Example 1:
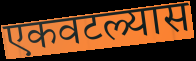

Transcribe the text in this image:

एकवटल्यास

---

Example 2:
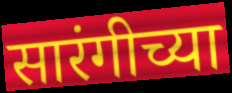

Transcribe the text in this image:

सारंगीच्या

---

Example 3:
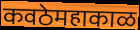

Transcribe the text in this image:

कवठेमहाकाळ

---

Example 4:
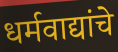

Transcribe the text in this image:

धर्मवाद्यांचे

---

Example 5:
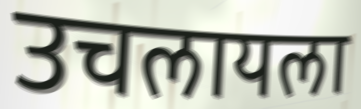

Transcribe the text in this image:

उचलायला